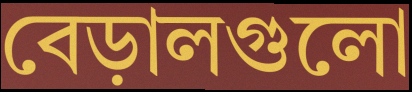
বেড়ালগুলো